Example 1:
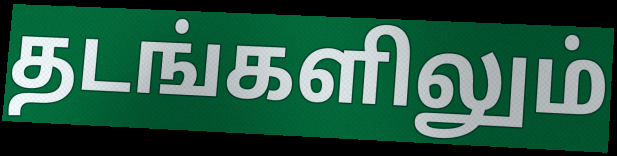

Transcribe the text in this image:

தடங்களிலும்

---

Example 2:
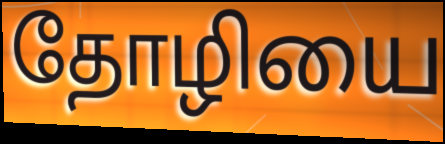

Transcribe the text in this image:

தோழியை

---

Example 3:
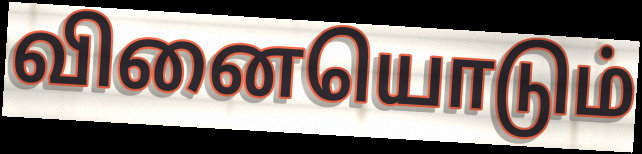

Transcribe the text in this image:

வினையொடும்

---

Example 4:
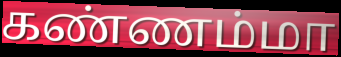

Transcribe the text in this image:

கண்ணம்மா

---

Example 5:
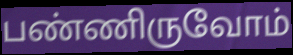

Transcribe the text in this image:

பண்ணிருவோம்